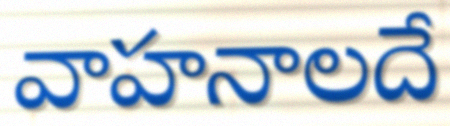
వాహనాలదే